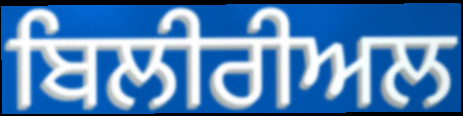
ਬਿਲੀਰੀਅਲ